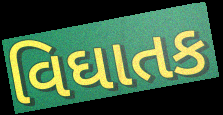
વિઘાતક